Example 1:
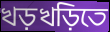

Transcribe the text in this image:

খড়খড়িতে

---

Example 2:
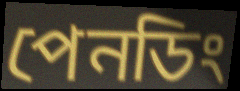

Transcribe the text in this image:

পেনডিং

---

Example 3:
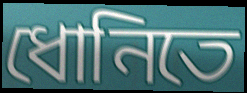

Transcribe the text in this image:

ধোনিতে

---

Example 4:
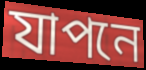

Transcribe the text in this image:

যাপনে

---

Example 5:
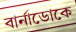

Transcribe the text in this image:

বার্নাডোকে